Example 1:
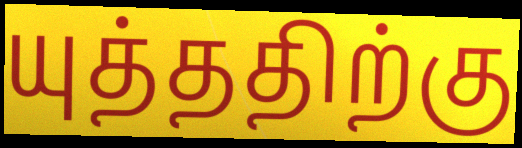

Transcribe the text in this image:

யுத்ததிற்கு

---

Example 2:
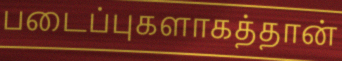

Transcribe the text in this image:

படைப்புகளாகத்தான்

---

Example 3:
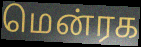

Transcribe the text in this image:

மென்ரக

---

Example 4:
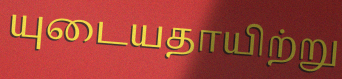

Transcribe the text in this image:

யுடையதாயிற்று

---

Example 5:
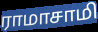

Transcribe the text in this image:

ராமாசாமி